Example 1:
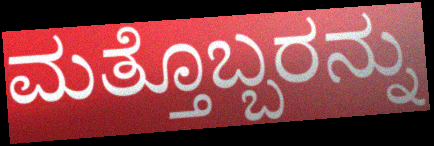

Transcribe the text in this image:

ಮತ್ತೊಬ್ಬರನ್ನು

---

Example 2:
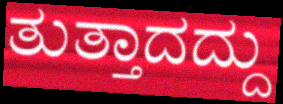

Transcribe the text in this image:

ತುತ್ತಾದದ್ದು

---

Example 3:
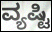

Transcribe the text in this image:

ವ್ಯಷ್ಟಿ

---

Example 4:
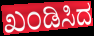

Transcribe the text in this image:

ಖಂಡಿಸಿದ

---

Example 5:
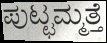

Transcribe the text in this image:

ಪುಟ್ಟಮ್ಮತ್ತೆ